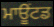
ਮਾਊਂਟਡ